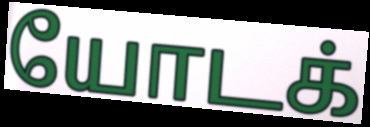
யோடக்